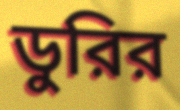
ডুরির